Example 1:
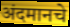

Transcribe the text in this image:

अंदमानचे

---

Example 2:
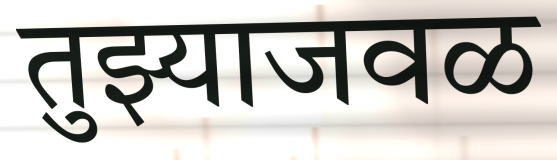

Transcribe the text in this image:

तुझ्याजवळ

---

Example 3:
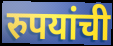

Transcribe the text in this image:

रुपयांची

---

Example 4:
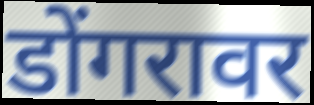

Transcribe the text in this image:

डोंगरावर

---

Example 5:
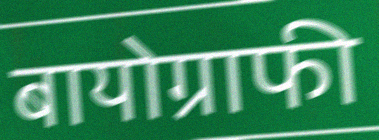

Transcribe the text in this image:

बायोग्राफी